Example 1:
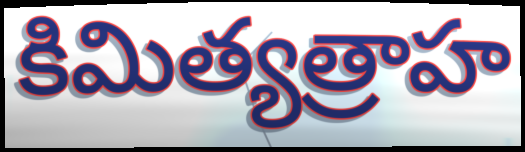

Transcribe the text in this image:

కిమిత్యత్రాహ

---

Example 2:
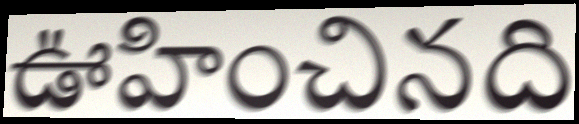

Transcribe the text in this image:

ఊహించినది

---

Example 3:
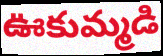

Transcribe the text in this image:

ఊకుమ్మడి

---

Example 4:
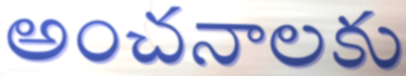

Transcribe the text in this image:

అంచనాలకు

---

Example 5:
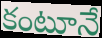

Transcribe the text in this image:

కంటూనే